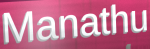
Manathu